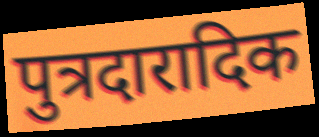
पुत्रदारादिक